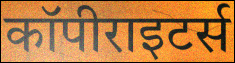
कॉपीराइटर्स